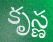
కృస్ణ